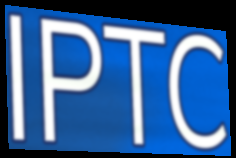
IPTC